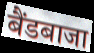
बैंडबाजा